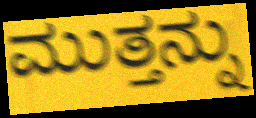
ಮುತ್ತನ್ನು